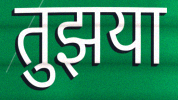
तुझया